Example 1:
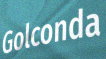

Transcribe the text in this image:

Golconda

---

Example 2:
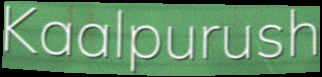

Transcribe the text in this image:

Kaalpurush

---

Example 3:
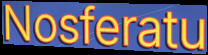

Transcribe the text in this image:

Nosferatu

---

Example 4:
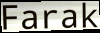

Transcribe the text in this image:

Farak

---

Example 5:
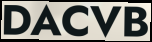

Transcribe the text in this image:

DACVB